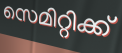
സെമിറ്റിക്ക്